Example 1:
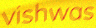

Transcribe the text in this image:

vishwas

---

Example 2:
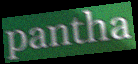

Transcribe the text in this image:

pantha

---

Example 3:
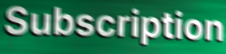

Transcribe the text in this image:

Subscription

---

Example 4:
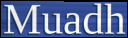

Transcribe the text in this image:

Muadh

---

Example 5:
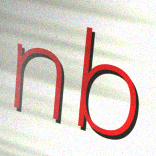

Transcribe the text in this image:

nb